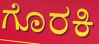
ಗೊರಕಿ